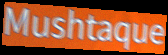
Mushtaque